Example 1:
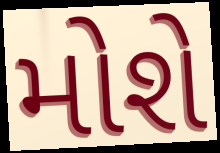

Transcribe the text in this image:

મોશે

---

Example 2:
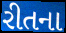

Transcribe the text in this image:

રીતના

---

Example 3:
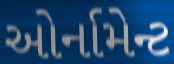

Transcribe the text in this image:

ઓર્નામેન્ટ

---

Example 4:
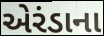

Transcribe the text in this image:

એરંડાના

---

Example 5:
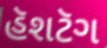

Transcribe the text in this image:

હૅશટૅગ